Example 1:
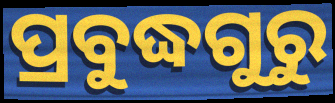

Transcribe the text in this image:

ପ୍ରବୁଦ୍ଧଗୁରୁ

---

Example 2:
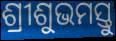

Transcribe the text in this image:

ଶ୍ରୀଶୁଭମସ୍ତୁ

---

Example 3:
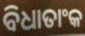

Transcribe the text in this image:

ବିଧାତାଂକ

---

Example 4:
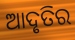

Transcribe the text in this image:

ଆଦୃତିର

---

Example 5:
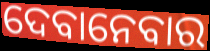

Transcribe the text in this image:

ଦେବାନେବାର